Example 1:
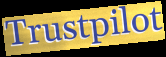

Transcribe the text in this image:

Trustpilot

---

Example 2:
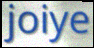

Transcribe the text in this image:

joiye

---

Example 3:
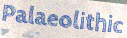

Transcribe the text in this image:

Palaeolithic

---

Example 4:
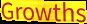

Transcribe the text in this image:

Growths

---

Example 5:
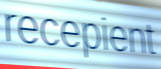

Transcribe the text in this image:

recepient